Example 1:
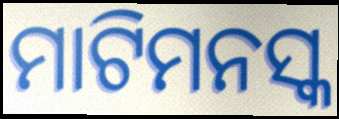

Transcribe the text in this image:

ମାଟିମନସ୍କ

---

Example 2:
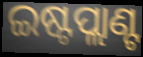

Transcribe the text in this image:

ଇଷ୍ଟପ୍ଲାଣ୍ଟ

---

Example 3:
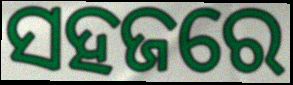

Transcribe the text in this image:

ସହଜରେ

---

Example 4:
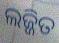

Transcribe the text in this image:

ଲଜ୍ଜିତ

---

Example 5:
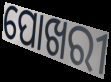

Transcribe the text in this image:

ପୋଖରୀ